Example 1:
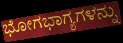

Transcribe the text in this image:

ಭೋಗಭಾಗ್ಯಗಳನ್ನು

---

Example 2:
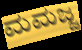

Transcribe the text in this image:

ಮಮಜ್ಜ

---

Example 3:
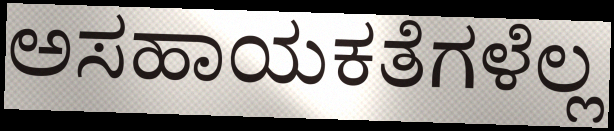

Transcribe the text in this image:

ಅಸಹಾಯಕತೆಗಳೆಲ್ಲ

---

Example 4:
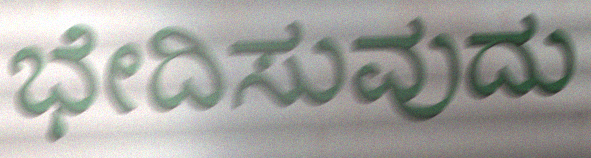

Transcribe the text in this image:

ಭೇದಿಸುವುದು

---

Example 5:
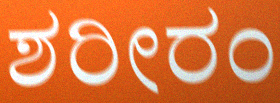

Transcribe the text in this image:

ಶರೀರಂ